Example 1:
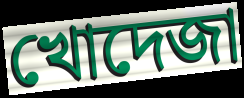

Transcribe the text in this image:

খোদেজা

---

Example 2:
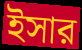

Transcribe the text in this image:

ইসার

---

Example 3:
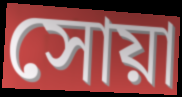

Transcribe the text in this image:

সোয়া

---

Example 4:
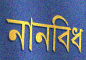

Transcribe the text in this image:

নানবিধ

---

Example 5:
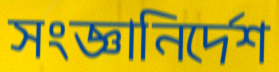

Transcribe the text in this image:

সংজ্ঞানির্দেশ